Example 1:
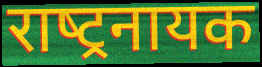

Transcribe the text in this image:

राष्ट्रनायक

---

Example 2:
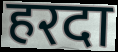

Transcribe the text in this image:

हरदा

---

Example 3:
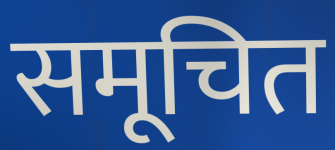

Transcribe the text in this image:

समूचित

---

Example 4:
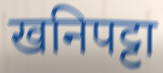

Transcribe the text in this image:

खनिपट्टा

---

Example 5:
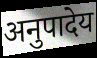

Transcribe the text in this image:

अनुपादेय